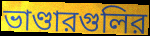
ভাণ্ডারগুলির